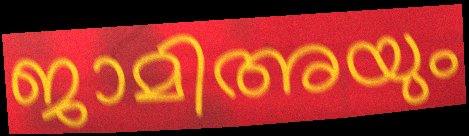
ജാമിഅയും